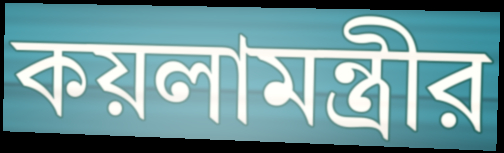
কয়লামন্ত্রীর